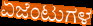
ಏಜೆಂಟುಗಳ